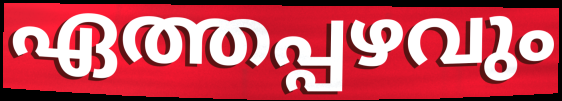
ഏത്തപ്പഴവും